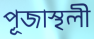
পূজাস্থলী